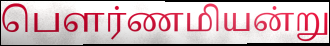
பெளர்ணமியன்று